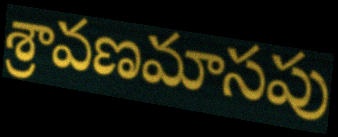
శ్రావణమాసపు